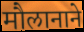
मौलानाने